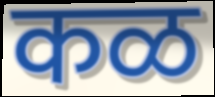
कळ